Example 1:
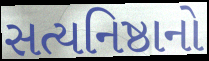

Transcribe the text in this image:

સત્યનિષ્ઠાનો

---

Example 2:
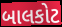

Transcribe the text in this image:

બાલકોટ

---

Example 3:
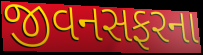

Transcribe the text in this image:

જીવનસફરના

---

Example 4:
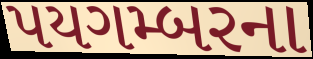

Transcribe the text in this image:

પયગમ્બરના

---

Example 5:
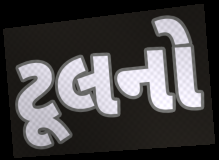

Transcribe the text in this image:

ટૂલનો